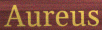
Aureus